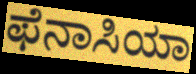
ಫೆನಾಸಿಯಾ